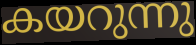
കയറുന്നു